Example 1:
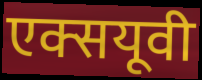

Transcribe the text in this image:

एक्सयूवी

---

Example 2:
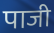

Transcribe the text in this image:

पाजी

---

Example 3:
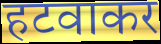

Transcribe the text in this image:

हटवाकर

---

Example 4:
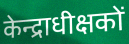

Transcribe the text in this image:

केन्द्राधीक्षकों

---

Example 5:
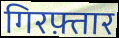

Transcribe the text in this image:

गिरफ़्तार